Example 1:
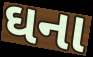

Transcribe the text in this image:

ઘના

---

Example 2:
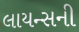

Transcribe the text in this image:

લાયન્સની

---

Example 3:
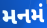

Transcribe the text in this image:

મનમં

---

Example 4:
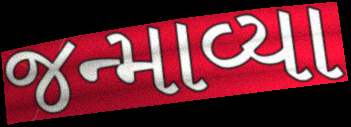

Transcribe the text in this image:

જન્માવ્યા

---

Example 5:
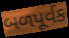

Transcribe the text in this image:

બળપૂર્વક